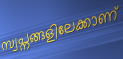
സ്വപ്നങ്ങളിലേക്കാണ്